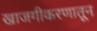
खाजगीकरणातून